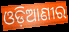
ଓଡ଼ିଆଣୀର